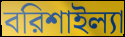
বরিশাইল্যা